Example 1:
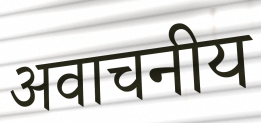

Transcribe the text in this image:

अवाचनीय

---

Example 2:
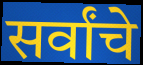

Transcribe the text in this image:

सर्वांचे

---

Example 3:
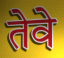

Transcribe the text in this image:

तेवे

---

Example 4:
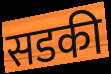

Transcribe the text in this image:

सडकी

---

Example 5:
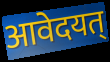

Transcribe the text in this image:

आवेदयत्